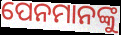
ପେନମାନଙ୍କୁ